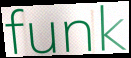
funk